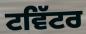
ਟਵਿੱਟਰ